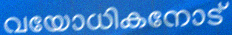
വയോധികനോട്